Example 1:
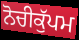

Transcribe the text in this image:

ਨੋਚੀਕੁੱਪਮ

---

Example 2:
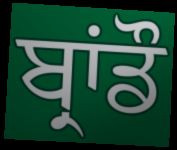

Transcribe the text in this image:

ਬ੍ਰਾਂਡੌ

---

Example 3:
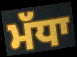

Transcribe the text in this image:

ਮੱਧਾ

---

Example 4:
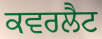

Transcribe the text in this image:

ਕਵਰਲੈਟ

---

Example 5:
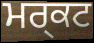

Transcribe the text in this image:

ਮਰ੍ਕਟ